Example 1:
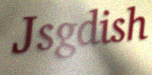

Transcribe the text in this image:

Jsgdish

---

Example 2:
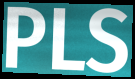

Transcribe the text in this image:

PLS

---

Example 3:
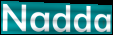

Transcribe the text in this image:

Nadda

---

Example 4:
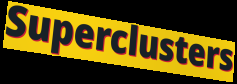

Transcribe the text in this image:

Superclusters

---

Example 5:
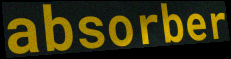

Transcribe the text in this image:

absorber